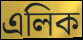
এলিক